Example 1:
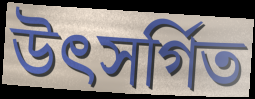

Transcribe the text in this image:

উৎসৰ্গিত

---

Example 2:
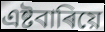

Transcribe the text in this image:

এষ্টবাৰিয়ে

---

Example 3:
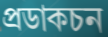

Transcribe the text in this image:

প্ৰডাকচন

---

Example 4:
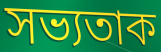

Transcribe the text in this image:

সভ্যতাক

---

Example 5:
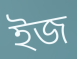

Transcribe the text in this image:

ইজ